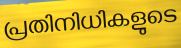
പ്രതിനിധികളുടെ